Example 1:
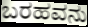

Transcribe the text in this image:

ಬರಹವನು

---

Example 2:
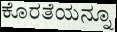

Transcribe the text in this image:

ಕೊರತೆಯನ್ನೂ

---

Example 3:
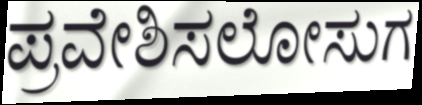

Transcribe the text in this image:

ಪ್ರವೇಶಿಸಲೋಸುಗ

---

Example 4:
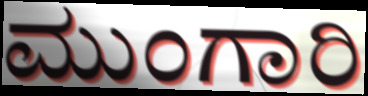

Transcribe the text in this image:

ಮುಂಗಾರಿ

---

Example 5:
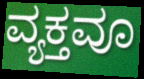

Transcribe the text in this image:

ವ್ಯಕ್ತವೂ